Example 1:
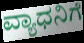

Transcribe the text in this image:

ವ್ಯಾಧನಿಗೆ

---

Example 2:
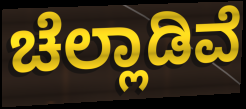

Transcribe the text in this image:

ಚೆಲ್ಲಾಡಿವೆ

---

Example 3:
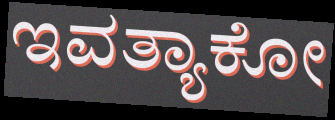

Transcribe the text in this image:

ಇವತ್ಯಾಕೋ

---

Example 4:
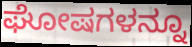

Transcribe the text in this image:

ಘೋಷಗಳನ್ನೂ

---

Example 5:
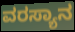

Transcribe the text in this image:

ವರಸ್ಯಾನ